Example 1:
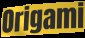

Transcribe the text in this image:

Origami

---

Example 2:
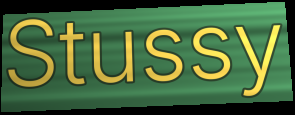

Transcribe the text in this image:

Stussy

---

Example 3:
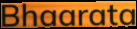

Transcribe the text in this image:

Bhaarata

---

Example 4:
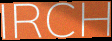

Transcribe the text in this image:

IRCH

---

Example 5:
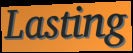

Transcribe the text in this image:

Lasting